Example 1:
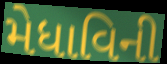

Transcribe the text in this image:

મેધાવિની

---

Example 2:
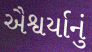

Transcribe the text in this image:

ઐશ્વર્યાનું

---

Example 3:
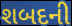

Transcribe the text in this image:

શબદની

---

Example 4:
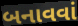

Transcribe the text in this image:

બનાવવાં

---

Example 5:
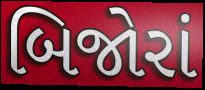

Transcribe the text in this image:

બિજોરાં